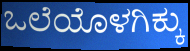
ಒಲೆಯೊಳಗಿಕ್ಕು